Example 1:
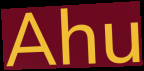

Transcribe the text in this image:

Ahu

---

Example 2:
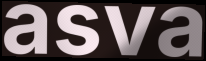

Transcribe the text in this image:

asva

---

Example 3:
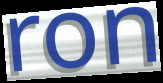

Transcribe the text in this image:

ron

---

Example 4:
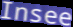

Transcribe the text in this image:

Insee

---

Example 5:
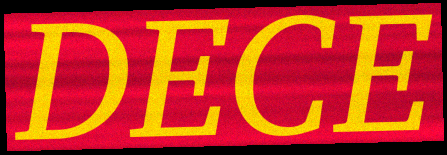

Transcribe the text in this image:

DECE